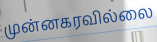
முன்னகரவில்லை